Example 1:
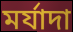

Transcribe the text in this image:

মৰ্যাদা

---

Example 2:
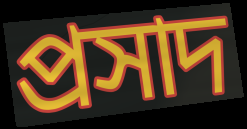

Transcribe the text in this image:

প্ৰসাদ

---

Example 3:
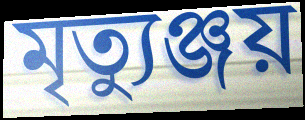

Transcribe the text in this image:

মৃত্যুঞ্জয়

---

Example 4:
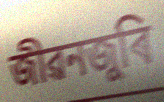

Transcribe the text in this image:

জীৱনজুৰি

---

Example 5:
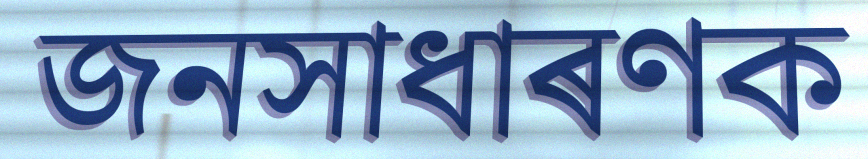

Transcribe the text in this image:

জনসাধাৰণক